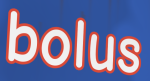
bolus